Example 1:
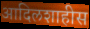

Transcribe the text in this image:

आदिलशाहीस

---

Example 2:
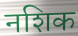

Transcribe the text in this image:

नशिक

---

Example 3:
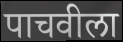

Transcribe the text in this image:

पाचवीला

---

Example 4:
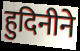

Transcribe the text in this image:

हुदिनीने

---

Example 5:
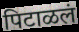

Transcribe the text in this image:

पिटाळलं